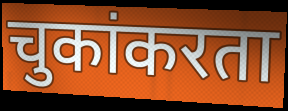
चुकांकरता